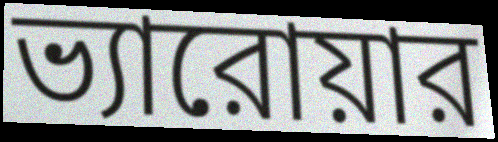
ভ্যারোয়ার